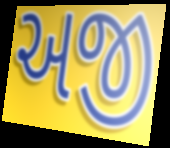
અજી